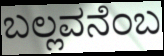
ಬಲ್ಲವನೆಂಬ